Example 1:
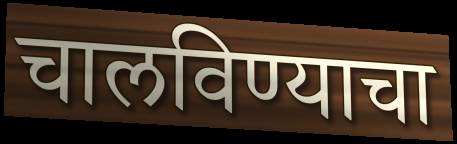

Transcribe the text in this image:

चालविण्याचा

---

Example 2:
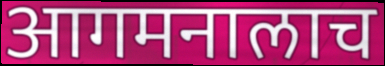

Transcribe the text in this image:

आगमनालाच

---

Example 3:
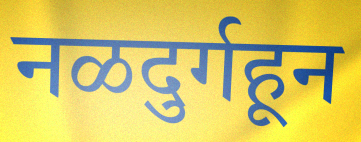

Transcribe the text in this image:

नळदुर्गहून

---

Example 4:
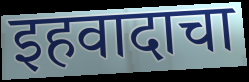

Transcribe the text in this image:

इहवादाचा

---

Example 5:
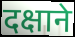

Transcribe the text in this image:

दक्षाने